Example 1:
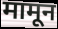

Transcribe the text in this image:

मामून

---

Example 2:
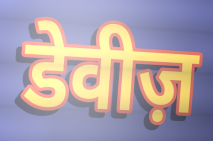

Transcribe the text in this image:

डेवीज़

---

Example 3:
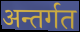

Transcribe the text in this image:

अन्तर्गत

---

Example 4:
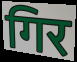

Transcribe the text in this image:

गिर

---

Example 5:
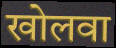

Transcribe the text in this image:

खोलवा